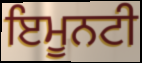
ਇਮੂਨਟੀ